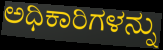
ಅಧಿಕಾರಿಗಳನ್ನು